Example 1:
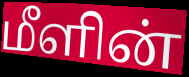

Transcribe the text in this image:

மீளின்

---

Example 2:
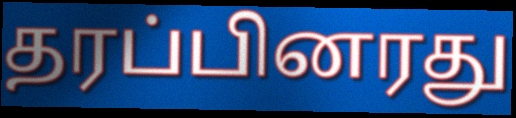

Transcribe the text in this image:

தரப்பினரது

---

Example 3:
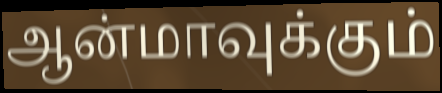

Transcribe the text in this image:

ஆன்மாவுக்கும்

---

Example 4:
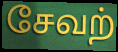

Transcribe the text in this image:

சேவற்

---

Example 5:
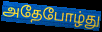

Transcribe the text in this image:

அதேபோழ்து